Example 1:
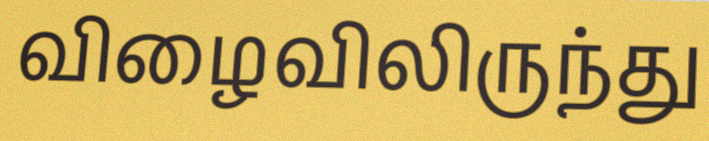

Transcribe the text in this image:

விழைவிலிருந்து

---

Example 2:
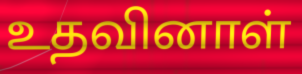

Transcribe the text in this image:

உதவினாள்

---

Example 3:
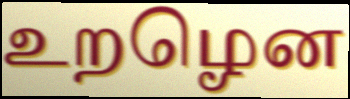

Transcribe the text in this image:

உறழென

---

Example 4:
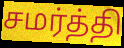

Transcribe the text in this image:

சமர்த்தி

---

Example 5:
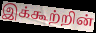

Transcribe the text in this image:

இக்கூற்றின்